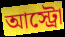
আস্ট্রো